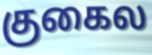
குகைல